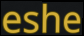
eshe